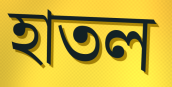
হাতল